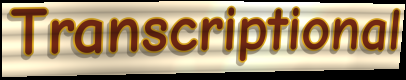
Transcriptional